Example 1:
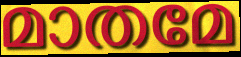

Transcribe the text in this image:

മാതമേ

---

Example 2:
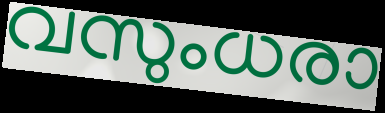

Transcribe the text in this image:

വസുംധരാ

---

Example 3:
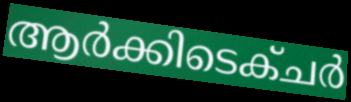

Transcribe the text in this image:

ആർക്കിടെക്ചർ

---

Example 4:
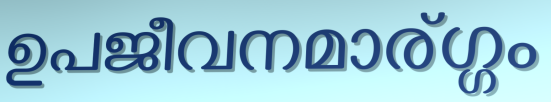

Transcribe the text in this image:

ഉപജീവനമാര്ഗ്ഗം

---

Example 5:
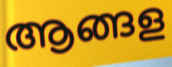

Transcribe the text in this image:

ആങ്ങള